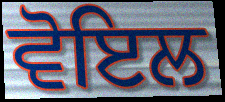
ਵੋਇਲ